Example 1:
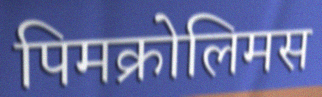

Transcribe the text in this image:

पिमक्रोलिमस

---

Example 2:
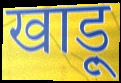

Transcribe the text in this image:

खाड़ू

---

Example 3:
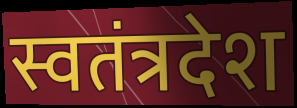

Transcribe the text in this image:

स्वतंत्रदेश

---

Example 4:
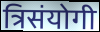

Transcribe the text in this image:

त्रिसंयोगी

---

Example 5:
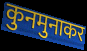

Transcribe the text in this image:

कुनमुनाकर